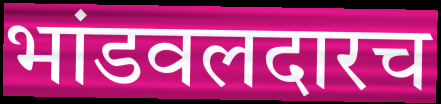
भांडवलदारच